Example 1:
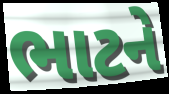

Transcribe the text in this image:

ભાટને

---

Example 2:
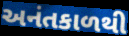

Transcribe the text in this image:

અનંતકાળથી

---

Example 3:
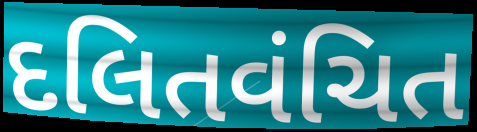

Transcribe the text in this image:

દલિતવંચિત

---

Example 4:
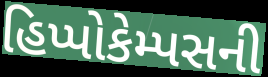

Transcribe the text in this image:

હિપ્પોકેમ્પસની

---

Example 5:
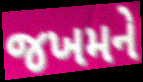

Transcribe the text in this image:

જખમને